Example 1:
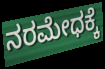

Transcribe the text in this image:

ನರಮೇಧಕ್ಕೆ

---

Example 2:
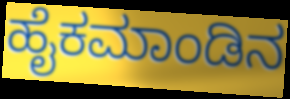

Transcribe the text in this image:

ಹೈಕಮಾಂಡಿನ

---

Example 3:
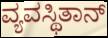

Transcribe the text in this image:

ವ್ಯವಸ್ಥಿತಾನ್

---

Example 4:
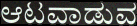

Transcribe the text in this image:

ಆಟವಾಡುವ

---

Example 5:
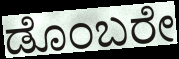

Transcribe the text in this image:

ಡೊಂಬರೇ